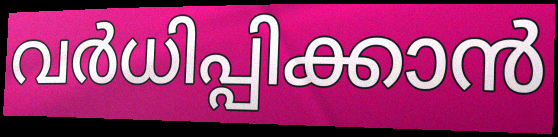
വർധിപ്പിക്കാൻ